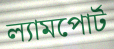
ল্যামপোর্ট